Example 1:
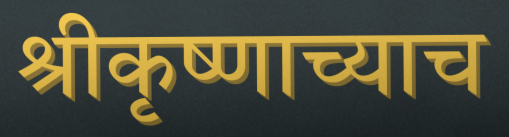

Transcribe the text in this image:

श्रीकृष्णाच्याच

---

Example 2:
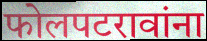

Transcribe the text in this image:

फोलपटरावांना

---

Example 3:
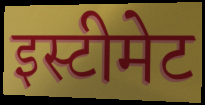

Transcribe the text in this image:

इस्टीमेट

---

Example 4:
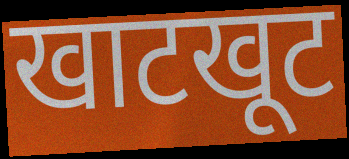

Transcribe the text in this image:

खाटखूट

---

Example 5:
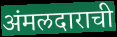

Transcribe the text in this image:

अंमलदाराची